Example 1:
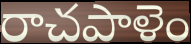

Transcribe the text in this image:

రాచపాళెం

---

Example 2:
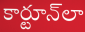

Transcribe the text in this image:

కార్టూన్‌లా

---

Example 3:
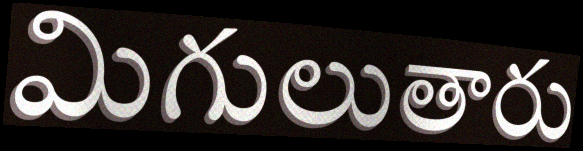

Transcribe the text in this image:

మిగులుతారు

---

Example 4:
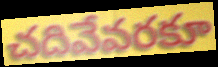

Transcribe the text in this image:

చదివేవరకూ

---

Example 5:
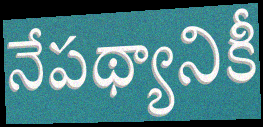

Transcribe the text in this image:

నేపథ్యానికీ